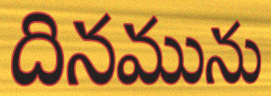
దినమును